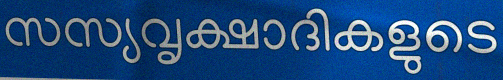
സസ്യവൃക്ഷാദികളുടെ